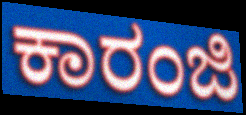
ಕಾರಂಜಿ